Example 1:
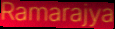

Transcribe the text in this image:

Ramarajya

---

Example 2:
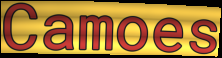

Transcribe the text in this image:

Camoes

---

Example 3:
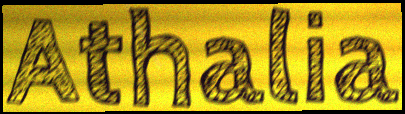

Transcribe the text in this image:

Athalia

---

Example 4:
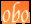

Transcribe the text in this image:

obo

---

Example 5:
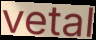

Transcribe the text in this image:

vetal